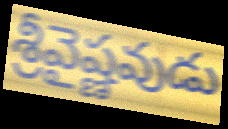
శ్రీవైష్ణవుడు